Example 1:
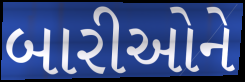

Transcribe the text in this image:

બારીઓને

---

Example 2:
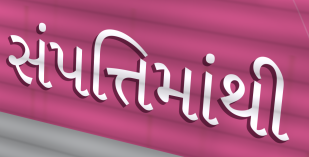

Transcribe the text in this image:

સંપત્તિમાંથી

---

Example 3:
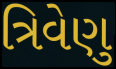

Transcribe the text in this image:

ત્રિવેણુ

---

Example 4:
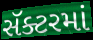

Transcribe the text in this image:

સૅક્ટરમાં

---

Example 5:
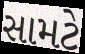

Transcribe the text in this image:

સામટે